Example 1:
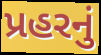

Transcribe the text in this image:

પ્રહરનું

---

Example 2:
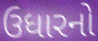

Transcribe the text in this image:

ઉધારનો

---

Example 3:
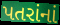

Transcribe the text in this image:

પતરાંનાં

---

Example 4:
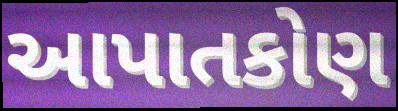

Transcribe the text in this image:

આપાતકોણ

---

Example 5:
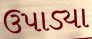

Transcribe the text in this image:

ઉપાડ્યા